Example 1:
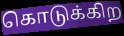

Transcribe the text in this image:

கொடுக்கிற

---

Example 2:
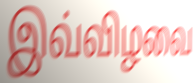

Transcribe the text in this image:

இவ்விழவை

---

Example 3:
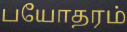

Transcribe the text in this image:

பயோதரம்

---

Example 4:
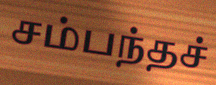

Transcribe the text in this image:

சம்பந்தச்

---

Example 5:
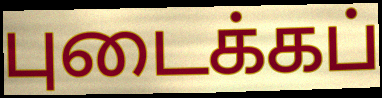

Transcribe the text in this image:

புடைக்கப்